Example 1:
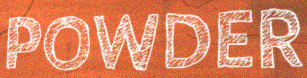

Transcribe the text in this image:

POWDER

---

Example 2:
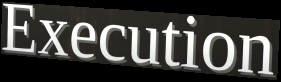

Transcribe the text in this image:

Execution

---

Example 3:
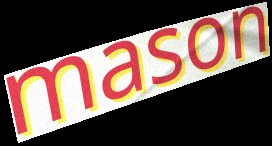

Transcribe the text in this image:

mason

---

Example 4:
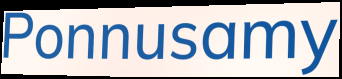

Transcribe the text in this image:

Ponnusamy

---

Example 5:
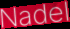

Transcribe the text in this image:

Nadel